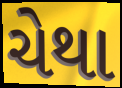
ચેથા